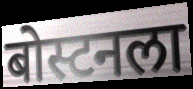
बोस्टनला